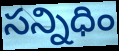
సన్నిధిం